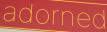
adorned